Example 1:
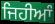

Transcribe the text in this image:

ਜਿਹੀਆੰ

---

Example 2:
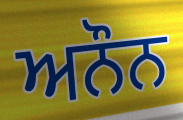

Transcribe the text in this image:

ਅਨੌਨ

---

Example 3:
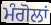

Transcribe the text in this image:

ਮੰਗੋਲਾਂ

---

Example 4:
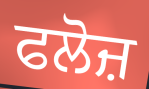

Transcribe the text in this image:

ਫਲੋਜ਼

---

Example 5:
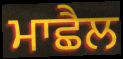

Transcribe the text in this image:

ਮਾਛੈਲ